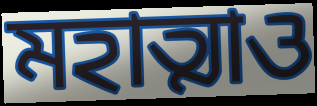
মহাত্মাও